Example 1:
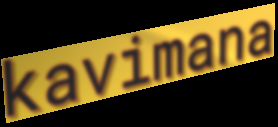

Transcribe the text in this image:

kavimana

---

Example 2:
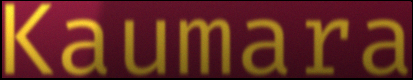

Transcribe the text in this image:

Kaumara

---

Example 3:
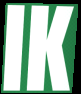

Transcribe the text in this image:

IK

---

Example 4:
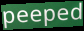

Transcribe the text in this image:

peeped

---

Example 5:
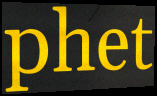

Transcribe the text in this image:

phet